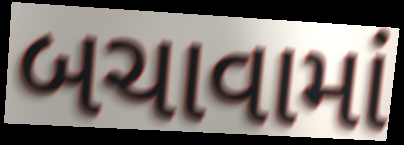
બચાવામાં